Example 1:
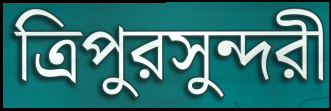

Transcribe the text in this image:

ত্রিপুরসুন্দরী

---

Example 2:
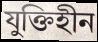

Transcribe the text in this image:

যুক্তিহীন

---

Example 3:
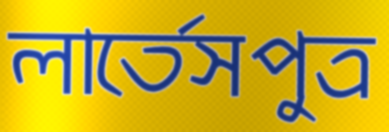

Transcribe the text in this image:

লার্তেসপুত্র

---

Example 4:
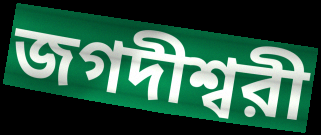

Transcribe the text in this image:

জগদীশ্বরী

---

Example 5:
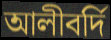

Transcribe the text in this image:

আলীবর্দি